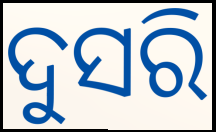
ଦୁସରି